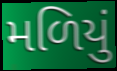
મળિયું